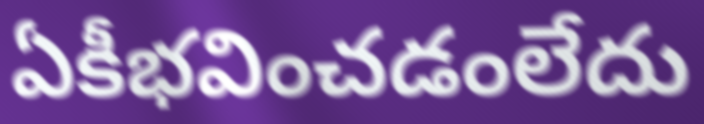
ఏకీభవించడంలేదు